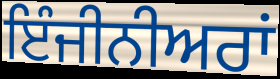
ਇੰਜੀਨੀਅਰਾਂ